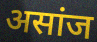
असांज